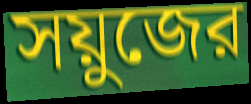
সয়ুজের